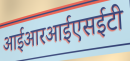
आईआरआईएसईटी